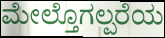
ಮೇಲ್ತೊಗಲ್ಪರೆಯ